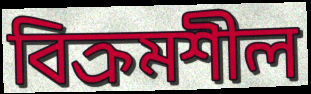
বিক্রমশীল